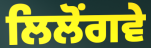
ਲਿਲੋਂਗਵੇ